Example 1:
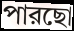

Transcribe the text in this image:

পারছো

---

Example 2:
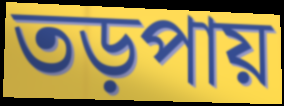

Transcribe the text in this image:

তড়পায়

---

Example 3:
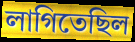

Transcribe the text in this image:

লাগিতেছিল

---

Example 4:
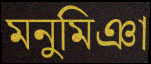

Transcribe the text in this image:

মনুমিঞা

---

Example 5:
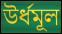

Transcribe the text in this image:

উর্ধমূল